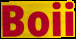
Boii